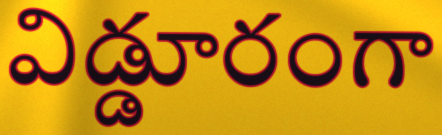
విడ్డూరంగా